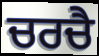
ਚਰਚੈ